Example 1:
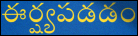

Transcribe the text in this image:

ఈర్ష్యపడడం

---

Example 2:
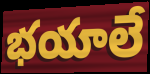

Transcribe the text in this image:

భయాలే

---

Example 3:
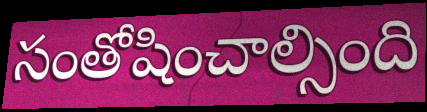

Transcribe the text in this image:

సంతోషించాల్సింది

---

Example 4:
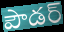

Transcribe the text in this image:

పౌడర్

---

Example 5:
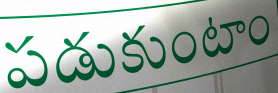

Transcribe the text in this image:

పడుకుంటాం